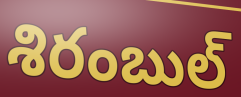
శిరంబుల్